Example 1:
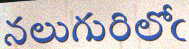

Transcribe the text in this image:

నలుగురిలోఁ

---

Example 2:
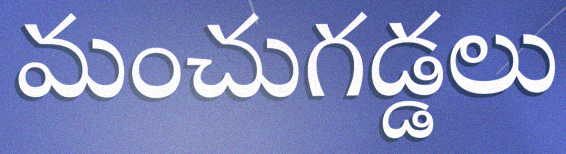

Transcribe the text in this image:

మంచుగడ్డలు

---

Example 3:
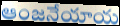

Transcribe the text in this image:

ఆంజనేయాయ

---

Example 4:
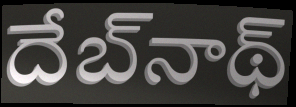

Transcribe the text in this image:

దేబ్‌నాథ్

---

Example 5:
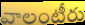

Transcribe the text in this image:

వాలంటీరు